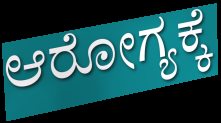
ಆರೋಗ್ಯಕ್ಕೆ